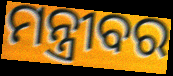
ମନ୍ତ୍ରୀବର